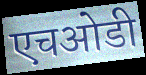
एचओडी